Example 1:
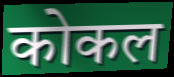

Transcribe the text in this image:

कोकल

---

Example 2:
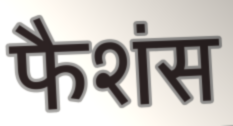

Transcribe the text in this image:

फैशंस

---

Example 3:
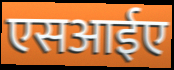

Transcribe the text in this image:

एसआईए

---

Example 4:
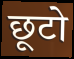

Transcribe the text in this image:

छूटो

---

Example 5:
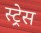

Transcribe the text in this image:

स्ट्रेस